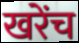
खरेंच